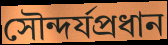
সৌন্দর্যপ্রধান